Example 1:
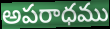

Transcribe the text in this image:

అపరాధము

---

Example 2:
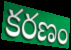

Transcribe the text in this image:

కరణం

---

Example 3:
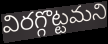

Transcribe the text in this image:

విరగ్గొట్టమని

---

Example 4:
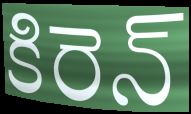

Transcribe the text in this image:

కిరెన్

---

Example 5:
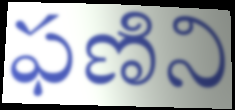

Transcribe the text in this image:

ఫణిని